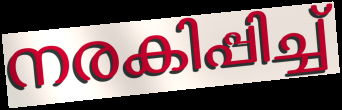
നരകിപ്പിച്ച്